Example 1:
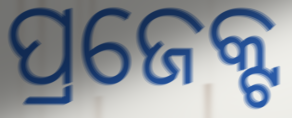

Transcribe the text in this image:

ପ୍ରଜେକ୍ଟ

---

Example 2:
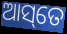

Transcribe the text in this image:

ଆସ୍‌ତେ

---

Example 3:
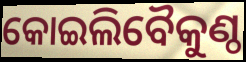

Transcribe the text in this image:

କୋଇଲିବୈକୁଣ୍ଠ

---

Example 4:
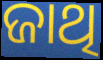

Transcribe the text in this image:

ଜାଥି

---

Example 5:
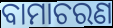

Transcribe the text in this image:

ବାମାଚରଣ